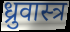
ध्रुवास्त्र